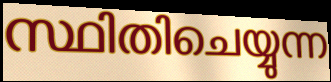
സ്ഥിതിചെയ്യുന്ന